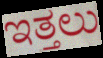
ಇತ್ತಲು